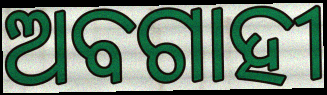
ଅବଗାହୀ